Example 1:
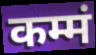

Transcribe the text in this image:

कम्मं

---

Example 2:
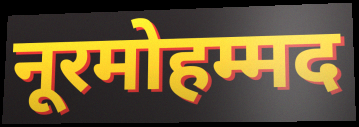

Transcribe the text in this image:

नूरमोहम्मद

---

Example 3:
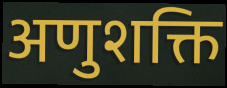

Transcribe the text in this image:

अणुशक्ति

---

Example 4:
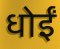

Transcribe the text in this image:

धोईं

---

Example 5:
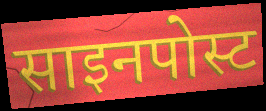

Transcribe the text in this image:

साइनपोस्ट